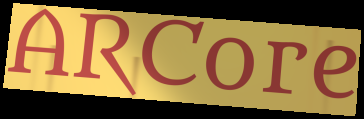
ARCore